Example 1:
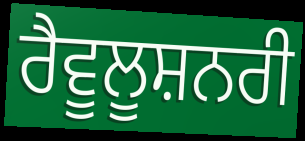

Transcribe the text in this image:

ਰੈਵੂਲੂਸ਼ਨਰੀ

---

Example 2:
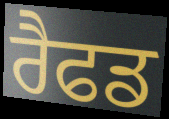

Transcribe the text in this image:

ਰੈਫਡ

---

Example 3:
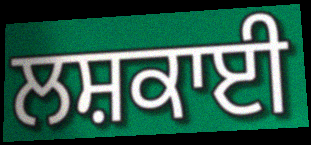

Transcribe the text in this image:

ਲਸ਼ਕਾਈ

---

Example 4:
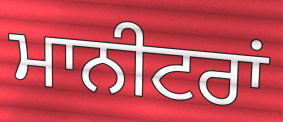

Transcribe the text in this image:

ਮਾਨੀਟਰਾਂ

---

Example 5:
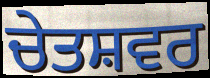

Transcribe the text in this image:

ਚੇਤਸ਼ਵਰ